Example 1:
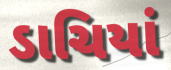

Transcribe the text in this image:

ડાચિયાં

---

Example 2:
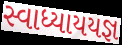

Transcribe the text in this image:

સ્વાધ્યાયયજ્ઞ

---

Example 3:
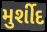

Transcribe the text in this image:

મુર્શીદ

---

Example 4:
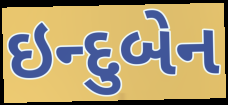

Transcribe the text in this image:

ઇન્દુબેન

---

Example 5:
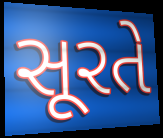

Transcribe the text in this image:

સૂરતે